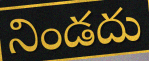
నిండదు